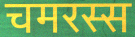
चमरस्स